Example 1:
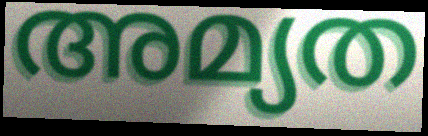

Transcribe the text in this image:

അമ്യത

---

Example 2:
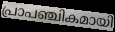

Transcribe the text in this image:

പ്രാപഞ്ചികമായി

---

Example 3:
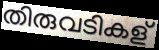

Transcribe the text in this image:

തിരുവടികള്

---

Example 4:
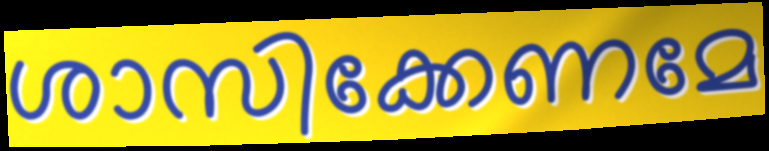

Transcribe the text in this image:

ശാസിക്കേണമേ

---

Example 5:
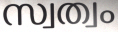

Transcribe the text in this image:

സ്വത്വം